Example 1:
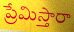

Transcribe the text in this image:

ప్రేమిస్తారా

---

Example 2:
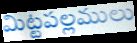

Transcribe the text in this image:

మిట్టపల్లములు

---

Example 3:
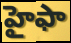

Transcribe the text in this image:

హైఫా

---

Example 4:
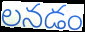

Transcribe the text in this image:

లనడం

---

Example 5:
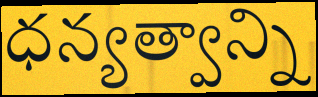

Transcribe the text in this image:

ధన్యత్వాన్ని